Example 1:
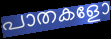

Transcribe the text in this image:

പാതകളോ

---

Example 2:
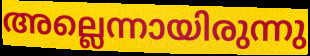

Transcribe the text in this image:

അല്ലെന്നായിരുന്നു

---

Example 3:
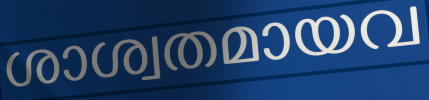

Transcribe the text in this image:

ശാശ്വതമായവ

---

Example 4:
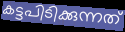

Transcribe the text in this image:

കട്ടപിടിക്കുന്നത്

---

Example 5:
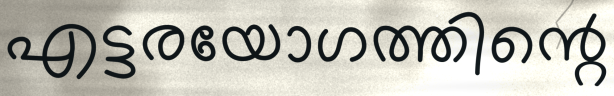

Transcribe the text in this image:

എട്ടരയോഗത്തിന്റെ